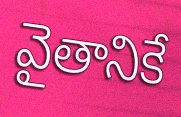
వైతానికే